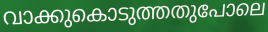
വാക്കുകൊടുത്തതുപോലെ